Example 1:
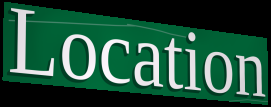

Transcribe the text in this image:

Location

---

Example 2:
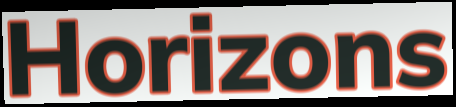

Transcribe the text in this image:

Horizons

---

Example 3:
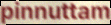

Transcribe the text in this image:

pinnuttam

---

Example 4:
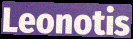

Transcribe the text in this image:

Leonotis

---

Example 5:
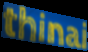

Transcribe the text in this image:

thinai